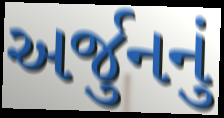
અર્જુનનું